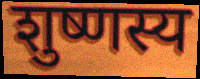
शुष्णस्य